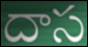
దాస